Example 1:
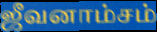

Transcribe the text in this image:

ஜீவனாம்சம்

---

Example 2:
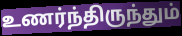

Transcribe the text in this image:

உணர்ந்திருந்தும்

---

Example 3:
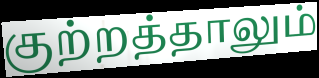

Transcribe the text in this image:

குற்றத்தாலும்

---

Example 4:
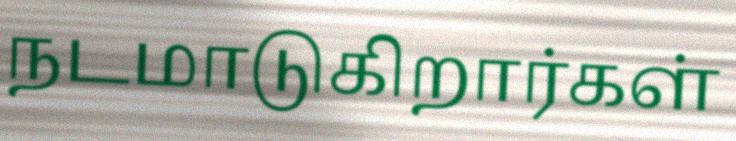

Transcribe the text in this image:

நடமாடுகிறார்கள்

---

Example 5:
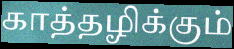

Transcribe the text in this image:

காத்தழிக்கும்